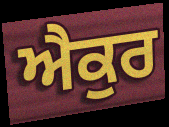
ਐਕੁਰ